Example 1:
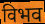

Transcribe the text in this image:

विभव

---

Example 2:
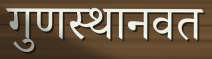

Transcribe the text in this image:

गुणस्थानवत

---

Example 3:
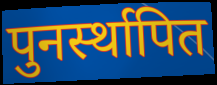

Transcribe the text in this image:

पुनर्स्थापित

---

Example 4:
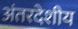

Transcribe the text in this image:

अंतरदेशीय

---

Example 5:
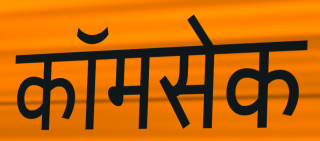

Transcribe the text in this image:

कॉमसेक